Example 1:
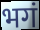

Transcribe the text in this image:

भगं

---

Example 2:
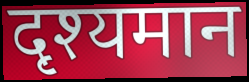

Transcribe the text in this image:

दृश्यमान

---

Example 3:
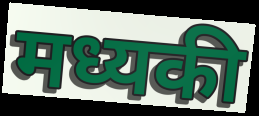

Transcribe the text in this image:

मध्यकी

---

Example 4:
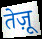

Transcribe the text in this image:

तेज़ू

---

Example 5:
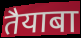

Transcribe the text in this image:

तैयाबा